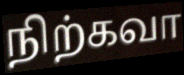
நிற்கவா